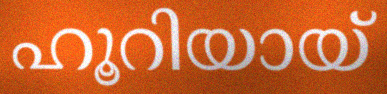
ഹൂറിയായ്